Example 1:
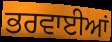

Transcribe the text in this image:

ਭਰਵਾਈਆਂ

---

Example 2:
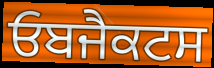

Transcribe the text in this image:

ਓਬਜੈਕਟਸ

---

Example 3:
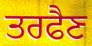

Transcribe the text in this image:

ਤਰਫੈਣ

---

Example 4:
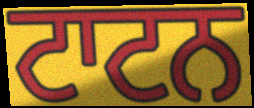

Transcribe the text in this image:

ਟਾਟਨ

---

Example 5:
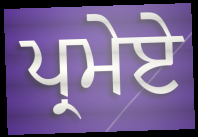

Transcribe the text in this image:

ਪ੍ਰਮੇਏ